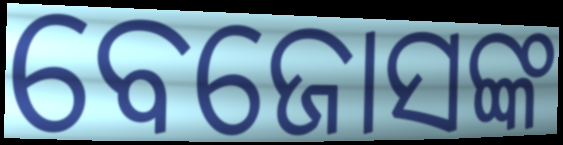
ବେଜୋସଙ୍କ